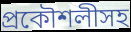
প্রকৌশলীসহ